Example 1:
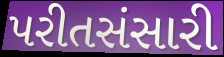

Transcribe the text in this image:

પરીતસંસારી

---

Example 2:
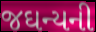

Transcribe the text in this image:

જઘન્યની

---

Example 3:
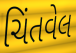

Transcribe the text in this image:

ચિંતવેલ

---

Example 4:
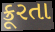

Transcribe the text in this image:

ક્રૂરતા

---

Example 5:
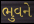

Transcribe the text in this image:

ભુવને